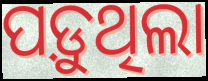
ପଡ଼ୁଥିଲା